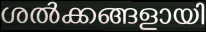
ശൽക്കങ്ങളായി